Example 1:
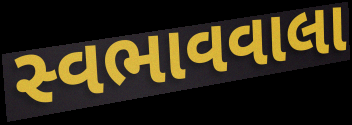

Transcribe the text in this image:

સ્વભાવવાલા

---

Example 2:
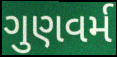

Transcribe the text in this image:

ગુણવર્મ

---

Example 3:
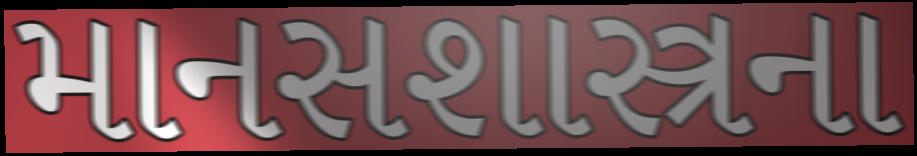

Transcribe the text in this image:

માનસશાસ્ત્રના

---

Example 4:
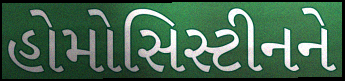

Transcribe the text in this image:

હોમોસિસ્ટીનને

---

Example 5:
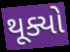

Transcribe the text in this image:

થૂક્યો